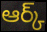
ఆర్క్